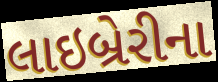
લાઇબ્રેરીના